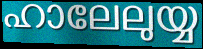
ഹാലേലുയ്യ